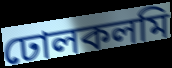
ঢোলকলমি